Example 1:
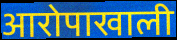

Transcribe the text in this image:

आरोपाखाली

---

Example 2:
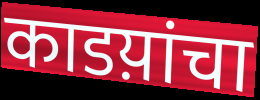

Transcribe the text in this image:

काडय़ांचा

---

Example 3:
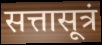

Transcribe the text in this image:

सत्तासूत्रं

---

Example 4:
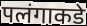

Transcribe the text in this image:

पलंगाकडे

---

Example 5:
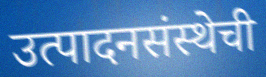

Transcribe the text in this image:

उत्पादनसंस्थेची